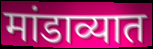
मांडाव्यात